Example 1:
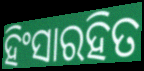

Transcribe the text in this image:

ହିଂସାରହିତ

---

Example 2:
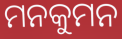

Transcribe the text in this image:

ମନକୁମନ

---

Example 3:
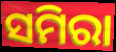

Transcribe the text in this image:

ସମିରା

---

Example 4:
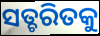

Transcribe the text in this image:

ସତ୍ଚରିତକୁ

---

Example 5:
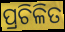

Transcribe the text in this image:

ପ୍ରଚିଳିତ